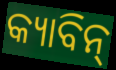
କ୍ୟାବିନ୍